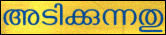
അടിക്കുന്നതു